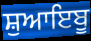
ਸ਼ੁਆਇਬੂ